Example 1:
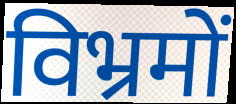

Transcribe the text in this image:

विभ्रमों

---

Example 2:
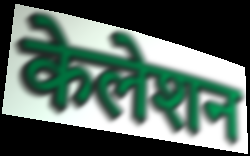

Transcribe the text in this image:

केलेशन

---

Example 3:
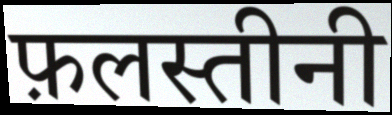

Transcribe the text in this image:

फ़लस्तीनी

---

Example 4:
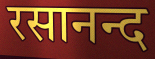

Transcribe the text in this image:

रसानन्द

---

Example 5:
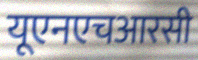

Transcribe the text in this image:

यूएनएचआरसी